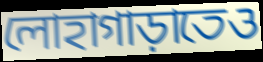
লোহাগাড়াতেও